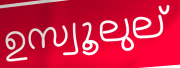
ഉസ്വൂലുല്